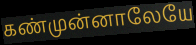
கண்முன்னாலேயே